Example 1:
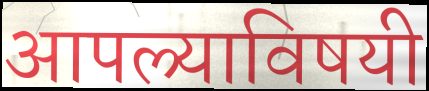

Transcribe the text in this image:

आपल्याविषयी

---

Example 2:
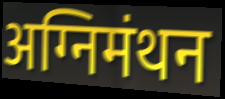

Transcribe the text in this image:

अग्निमंथन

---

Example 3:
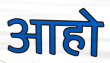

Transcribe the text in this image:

आहो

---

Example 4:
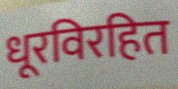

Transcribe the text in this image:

धूरविरहित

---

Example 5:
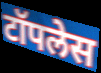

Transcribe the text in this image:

टॉपलेस